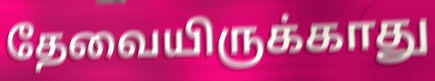
தேவையிருக்காது